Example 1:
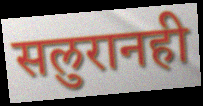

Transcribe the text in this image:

सलुरानही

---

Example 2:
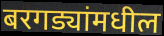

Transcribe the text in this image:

बरगड्यांमधील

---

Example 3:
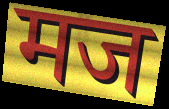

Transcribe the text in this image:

मज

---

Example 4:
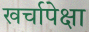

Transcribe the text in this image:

खर्चापेक्षा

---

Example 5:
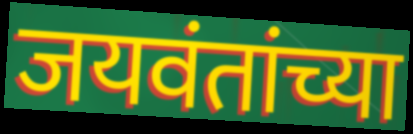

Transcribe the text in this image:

जयवंतांच्या